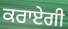
ਕਰਾਏਗੀ